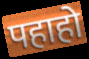
पहाहो